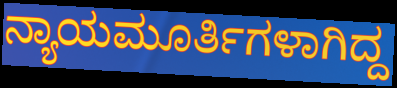
ನ್ಯಾಯಮೂರ್ತಿಗಳಾಗಿದ್ದ